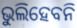
ଭୁଲିହେବନି